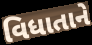
વિધાતાને